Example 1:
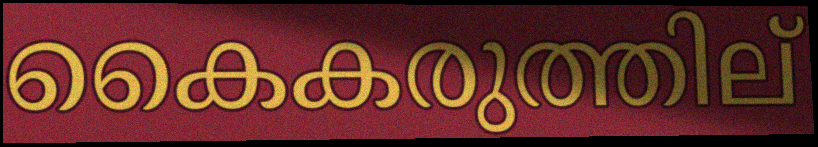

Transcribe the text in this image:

കൈകരുത്തില്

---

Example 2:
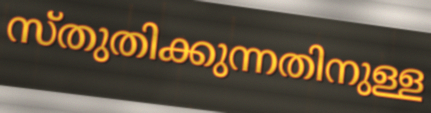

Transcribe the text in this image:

സ്തുതിക്കുന്നതിനുള്ള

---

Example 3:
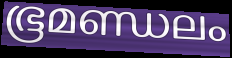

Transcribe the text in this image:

ഭൂമണ്ഡലം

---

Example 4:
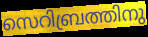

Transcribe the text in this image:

സെറിബ്രത്തിനു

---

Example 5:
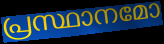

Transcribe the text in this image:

പ്രസ്ഥാനമോ